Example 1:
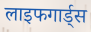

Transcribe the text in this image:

लाइफगार्ड्स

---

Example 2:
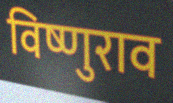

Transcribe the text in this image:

विष्णुराव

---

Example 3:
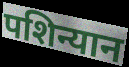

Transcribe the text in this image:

पशिन्यान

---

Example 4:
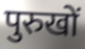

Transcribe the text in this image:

पुरुखों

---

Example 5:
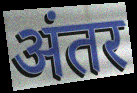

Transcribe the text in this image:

अंतर